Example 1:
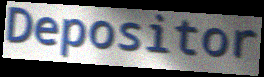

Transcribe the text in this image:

Depositor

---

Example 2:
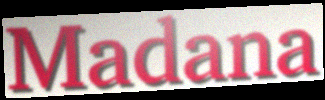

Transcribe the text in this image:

Madana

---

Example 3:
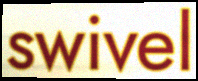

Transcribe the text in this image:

swivel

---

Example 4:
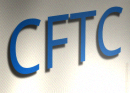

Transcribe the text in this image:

CFTC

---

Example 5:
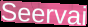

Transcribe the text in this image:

Seervai